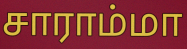
சாராம்மா